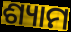
ଶ୍ୟାମ